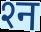
श्न